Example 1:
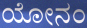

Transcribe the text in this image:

ಯೋನಂ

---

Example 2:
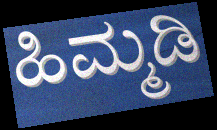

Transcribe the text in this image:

ಹಿಮ್ಮಡಿ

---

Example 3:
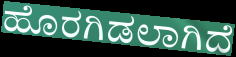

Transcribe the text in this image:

ಹೊರಗಿಡಲಾಗಿದೆ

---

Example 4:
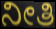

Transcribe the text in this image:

ನೀತಿ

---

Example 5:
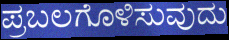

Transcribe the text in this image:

ಪ್ರಬಲಗೊಳಿಸುವುದು